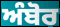
ਅੰਬੋਰ